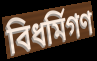
বিধর্মিগণ